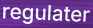
regulater